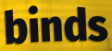
binds